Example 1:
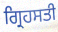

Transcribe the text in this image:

ਗ੍ਰਿਹਸਤੀ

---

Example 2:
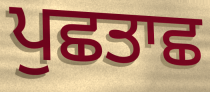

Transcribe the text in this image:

ਪੁਛਤਾਛ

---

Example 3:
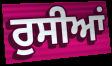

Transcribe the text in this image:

ਰੁਸੀਆਂ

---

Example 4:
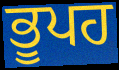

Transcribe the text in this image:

ਭੂਪਹ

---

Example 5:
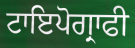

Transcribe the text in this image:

ਟਾਇਪੋਗ੍ਰਾਫੀ